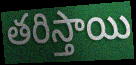
తరిస్తాయి